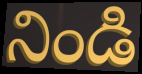
నిండి